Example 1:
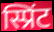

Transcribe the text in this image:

स्प्रिंट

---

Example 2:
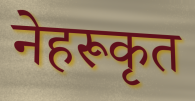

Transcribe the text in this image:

नेहरूकृत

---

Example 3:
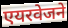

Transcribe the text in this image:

एयरवेजने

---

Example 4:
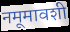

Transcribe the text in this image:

नमूमावशी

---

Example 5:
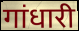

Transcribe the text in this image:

गांधारी